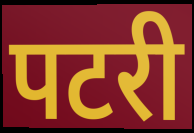
पटरी